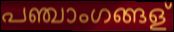
പഞ്ചാംഗങ്ങള്